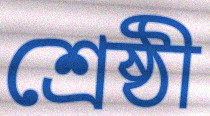
শ্রেষ্ঠী